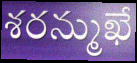
శరన్ముఖే